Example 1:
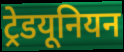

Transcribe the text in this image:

ट्रेडयूनियन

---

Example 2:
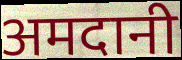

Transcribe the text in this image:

अमदानी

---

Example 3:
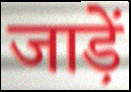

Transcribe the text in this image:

जाड़ें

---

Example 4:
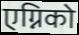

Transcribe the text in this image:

एग्निको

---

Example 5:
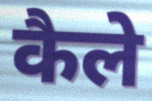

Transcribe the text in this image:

कैले